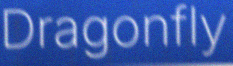
Dragonfly